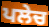
ਪਲੇਚ